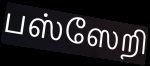
பஸ்ஸேறி